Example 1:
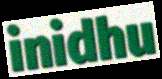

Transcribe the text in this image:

inidhu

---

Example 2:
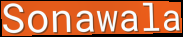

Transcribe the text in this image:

Sonawala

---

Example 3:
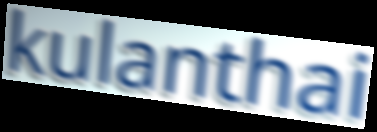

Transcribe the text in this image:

kulanthai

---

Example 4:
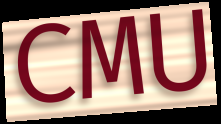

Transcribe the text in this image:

CMU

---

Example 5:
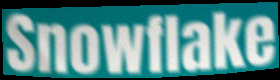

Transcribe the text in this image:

Snowflake